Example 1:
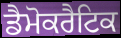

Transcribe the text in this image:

ਡੈਮੋਕਰੈਟਿਕ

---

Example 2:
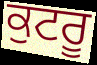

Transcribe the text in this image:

ਕੁਟਰੂ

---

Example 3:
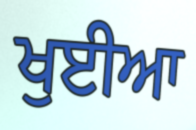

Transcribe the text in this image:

ਖੁਈਆ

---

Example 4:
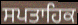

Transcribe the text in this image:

ਸਪਤਾਹਿਕ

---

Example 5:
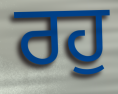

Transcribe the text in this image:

ਰਹੁ